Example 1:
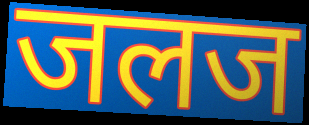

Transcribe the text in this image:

जलज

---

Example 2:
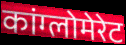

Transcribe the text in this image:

कांग्लोमेरेट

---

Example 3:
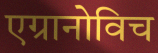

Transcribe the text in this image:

एग्रानोविच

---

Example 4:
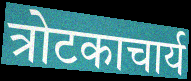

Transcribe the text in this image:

त्रोटकाचार्य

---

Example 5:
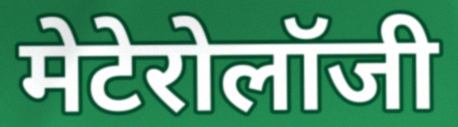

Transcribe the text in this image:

मेटेरोलॉजी